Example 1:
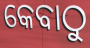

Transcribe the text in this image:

କେବାଠୁ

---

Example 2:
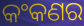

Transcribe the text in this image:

କଂକଣର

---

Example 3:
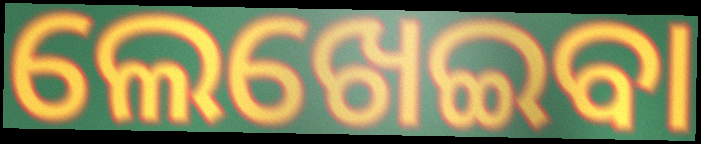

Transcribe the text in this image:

ଲେଖେଇବା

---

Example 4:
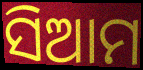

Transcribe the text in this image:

ସିଆମ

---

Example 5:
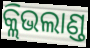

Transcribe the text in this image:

କ୍ଲିଭଲାଣ୍ଡ